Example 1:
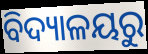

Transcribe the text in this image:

ବିଦ୍ୟାଳୟରୁ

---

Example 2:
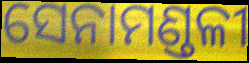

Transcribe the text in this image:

ସେନାମଣ୍ଡଳୀ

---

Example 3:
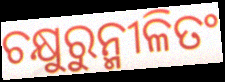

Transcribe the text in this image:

ଚକ୍ଷୁରୁନ୍ମୀଳିତଂ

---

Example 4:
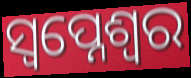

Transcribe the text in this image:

ସ୍ଵପ୍ନେଶ୍ଵର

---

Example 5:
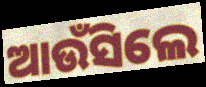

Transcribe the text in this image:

ଆଉଁସିଲେ